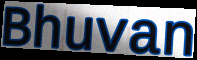
Bhuvan